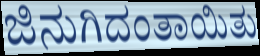
ಜಿನುಗಿದಂತಾಯಿತು